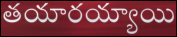
తయారయ్యాయి